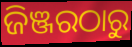
ଜିଞ୍ଜରଠାରୁ